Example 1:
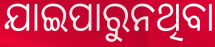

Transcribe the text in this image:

ଯାଇପାରୁନଥିବା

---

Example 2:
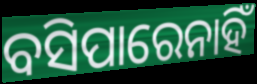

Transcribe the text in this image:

ବସିପାରେନାହିଁ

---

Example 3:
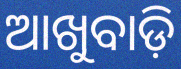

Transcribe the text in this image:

ଆଖୁବାଡ଼ି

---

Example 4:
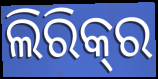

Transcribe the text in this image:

ଲିରିକ୍‍ର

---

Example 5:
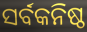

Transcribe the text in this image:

ସର୍ବକନିଷ୍ଠ